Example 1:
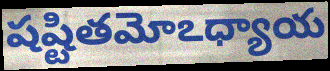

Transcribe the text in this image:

షష్టితమోఽధ్యాయ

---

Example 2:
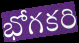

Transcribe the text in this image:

భోగకరి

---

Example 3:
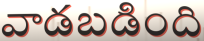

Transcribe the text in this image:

వాడబడింది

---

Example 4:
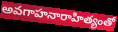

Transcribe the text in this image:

అవగాహనారాహిత్యంతో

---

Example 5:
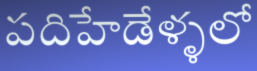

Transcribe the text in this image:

పదిహేడేళ్ళలో